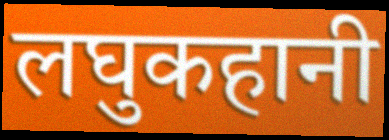
लघुकहानी